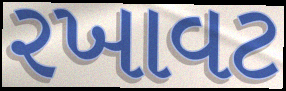
રખાવટ